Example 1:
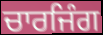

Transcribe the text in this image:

ਚਾਰਜਿੰਗ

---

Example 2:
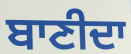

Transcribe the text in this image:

ਬਾਣੀਦਾ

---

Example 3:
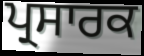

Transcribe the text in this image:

ਪ੍ਰਸਾਰਕ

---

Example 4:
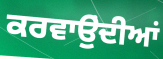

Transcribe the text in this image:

ਕਰਵਾਉੁਂਦੀਆਂ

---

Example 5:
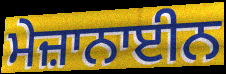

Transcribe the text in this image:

ਮੇਜ਼ਾਨਾਈਨ